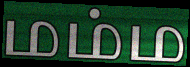
மம்ம